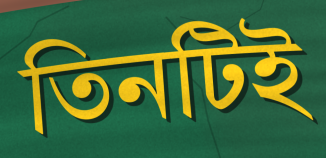
তিনটিই